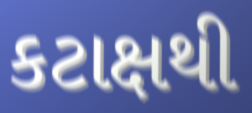
કટાક્ષથી